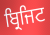
ਬ੍ਰਿਜਿਟ